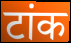
टांक